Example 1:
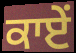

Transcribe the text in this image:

ਕਾਏਂ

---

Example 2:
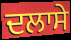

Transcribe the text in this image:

ਦਲਾਸੇ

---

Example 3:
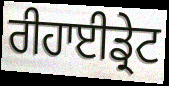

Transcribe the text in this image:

ਰੀਹਾਈਡ੍ਰੇਟ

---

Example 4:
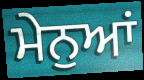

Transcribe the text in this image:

ਮੇਨੁਆਂ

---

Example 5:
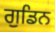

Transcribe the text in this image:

ਗੁਡਿਨ